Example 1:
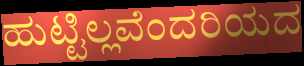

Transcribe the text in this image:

ಹುಟ್ಟಿಲ್ಲವೆಂದರಿಯದ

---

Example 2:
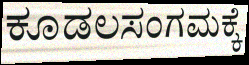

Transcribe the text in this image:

ಕೂಡಲಸಂಗಮಕ್ಕೆ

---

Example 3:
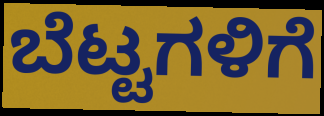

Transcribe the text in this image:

ಬೆಟ್ಟಗಳಿಗೆ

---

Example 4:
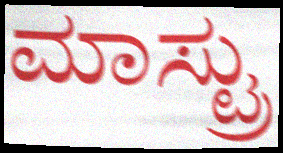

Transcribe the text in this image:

ಮಾಸ್ಟ್ರು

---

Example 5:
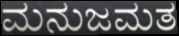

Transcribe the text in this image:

ಮನುಜಮತ